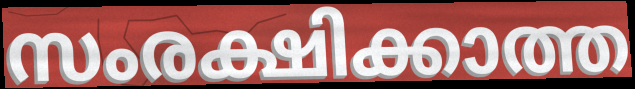
സംരക്ഷിക്കാത്ത